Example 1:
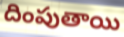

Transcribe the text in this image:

దింపుతాయి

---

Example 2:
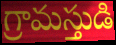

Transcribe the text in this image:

గ్రామస్తుడి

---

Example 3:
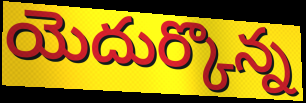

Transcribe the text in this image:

యెదుర్కొన్న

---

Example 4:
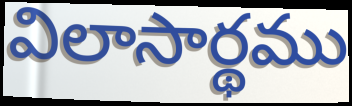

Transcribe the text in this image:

విలాసార్థము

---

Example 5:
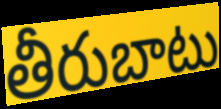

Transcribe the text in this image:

తీరుబాటు